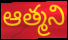
ఆత్మని